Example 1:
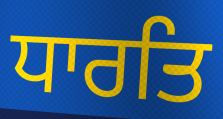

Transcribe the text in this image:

ਧਾਰਤਿ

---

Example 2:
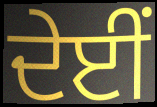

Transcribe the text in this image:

ਦੇਈਂ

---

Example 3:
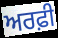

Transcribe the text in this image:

ਅਰਫ਼ੀ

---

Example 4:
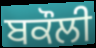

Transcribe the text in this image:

ਬਕੌਲੀ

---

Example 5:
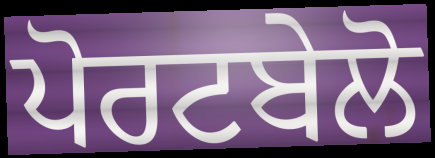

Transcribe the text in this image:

ਪੋਰਟਬੇਲੋ